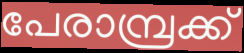
പേരാമ്പ്രക്ക്